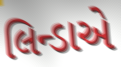
લિન્ડાએ